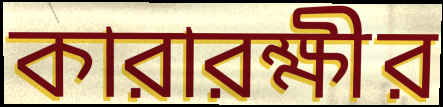
কারারক্ষীর